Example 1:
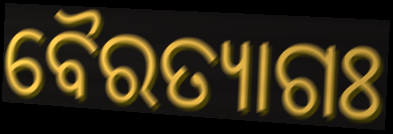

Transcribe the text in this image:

ବୈରତ୍ୟାଗଃ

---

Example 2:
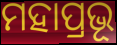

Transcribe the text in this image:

ମହାପ୍ରଭୂ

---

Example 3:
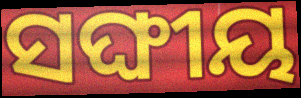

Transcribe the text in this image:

ସଙ୍ଘୀୟ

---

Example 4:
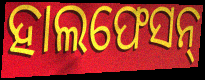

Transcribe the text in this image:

ହାଲଫେସନ୍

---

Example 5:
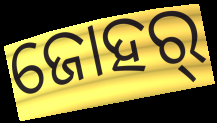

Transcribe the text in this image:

ଜୋହର୍